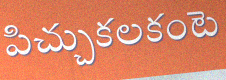
పిచ్చుకలకంటె